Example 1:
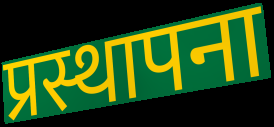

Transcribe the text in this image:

प्रस्थापना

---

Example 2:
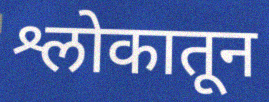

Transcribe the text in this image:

श्लोकातून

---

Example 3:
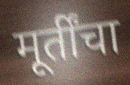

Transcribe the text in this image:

मूर्तींचा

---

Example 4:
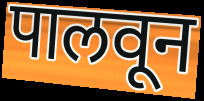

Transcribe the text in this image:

पालवून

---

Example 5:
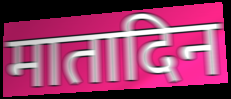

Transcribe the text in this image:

मातादिन